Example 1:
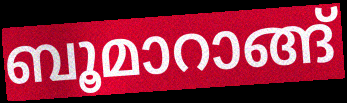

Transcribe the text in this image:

ബൂമാറാങ്ങ്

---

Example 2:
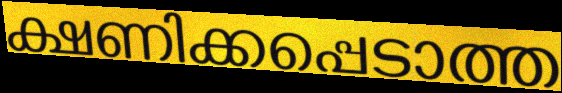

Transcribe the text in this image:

ക്ഷണിക്കപ്പെടാത്ത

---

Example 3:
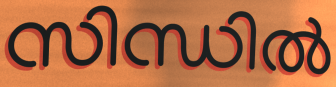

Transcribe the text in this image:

സിന്ധിൽ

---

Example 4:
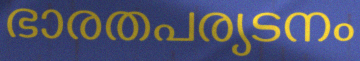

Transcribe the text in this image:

ഭാരതപര്യടനം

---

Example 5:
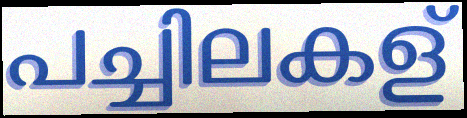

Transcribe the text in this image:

പച്ചിലകള്